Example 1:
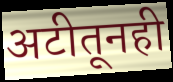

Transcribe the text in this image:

अटीतूनही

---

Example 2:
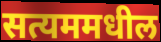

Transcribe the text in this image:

सत्यममधील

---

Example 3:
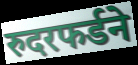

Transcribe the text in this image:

रुदरफर्डने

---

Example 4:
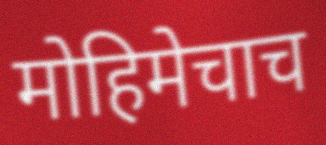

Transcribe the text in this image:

मोहिमेचाच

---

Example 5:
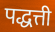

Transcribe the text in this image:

पद्धत्ती